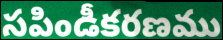
సపిండీకరణము